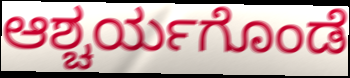
ಆಶ್ಚರ್ಯಗೊಂಡೆ